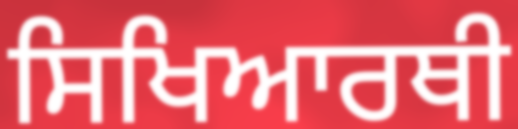
ਸਿਖਿਆਰਥੀ